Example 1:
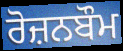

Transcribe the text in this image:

ਰੋਜ਼ਨਬੌਮ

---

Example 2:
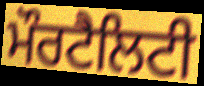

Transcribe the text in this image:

ਮੌਰਟੈਲਿਟੀ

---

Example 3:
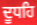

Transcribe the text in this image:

ਦੂਧਹਿ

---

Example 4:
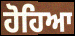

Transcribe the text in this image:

ਹੋਹਿਆ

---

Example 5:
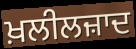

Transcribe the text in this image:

ਖ਼ਲੀਲਜ਼ਾਦ